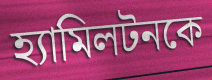
হ্যামিলটনকে